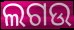
ଲଗଉ